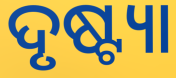
ଦୃଷ୍ଟ୍ୟା